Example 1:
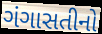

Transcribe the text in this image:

ગંગાસતીનો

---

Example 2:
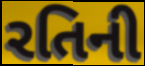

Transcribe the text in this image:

રતિની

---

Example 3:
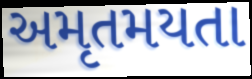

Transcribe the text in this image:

અમૃતમયતા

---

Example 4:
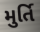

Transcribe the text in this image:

મુર્તિ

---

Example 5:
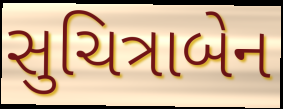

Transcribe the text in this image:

સુચિત્રાબેન